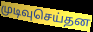
முடிவுசெய்தன